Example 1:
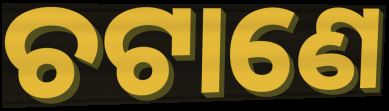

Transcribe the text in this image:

ଚଟାଣେ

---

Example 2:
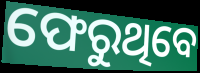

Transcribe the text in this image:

ଫେରୁଥିବେ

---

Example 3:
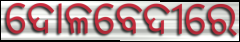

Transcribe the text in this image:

ଦୋଳବେଦୀରେ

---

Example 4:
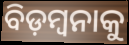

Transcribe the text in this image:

ବିଡ଼ମ୍ୱନାକୁ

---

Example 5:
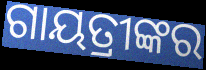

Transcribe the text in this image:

ଗାୟତ୍ରୀଙ୍କର